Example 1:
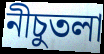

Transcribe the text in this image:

নীচুতলা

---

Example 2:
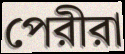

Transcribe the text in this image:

পেরীরা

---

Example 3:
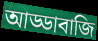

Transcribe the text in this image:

আড্ডাবাজি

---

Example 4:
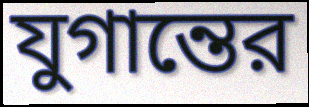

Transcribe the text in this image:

যুগান্তের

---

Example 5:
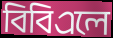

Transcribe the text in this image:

বিবিএলে